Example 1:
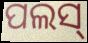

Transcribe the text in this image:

ପଲସ୍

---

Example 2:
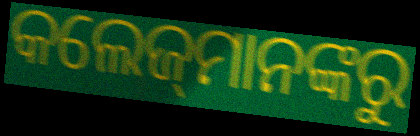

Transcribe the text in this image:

କଲେଜ୍‌ମାନଙ୍କରୁ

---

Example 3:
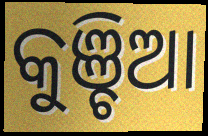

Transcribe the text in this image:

କୁଞ୍ଚିଆ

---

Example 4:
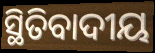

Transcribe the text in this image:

ସ୍ଥିତିବାଦୀୟ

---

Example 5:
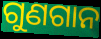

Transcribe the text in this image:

ଗୁଣଗାନ